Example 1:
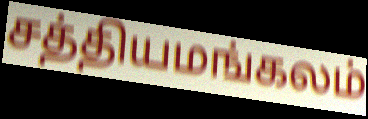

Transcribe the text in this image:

சத்தியமங்கலம்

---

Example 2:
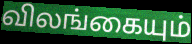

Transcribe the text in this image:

விலங்கையும்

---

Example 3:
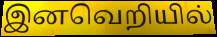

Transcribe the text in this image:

இனவெறியில்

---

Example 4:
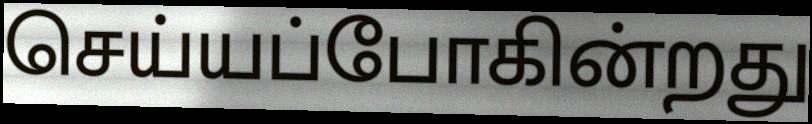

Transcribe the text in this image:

செய்யப்போகின்றது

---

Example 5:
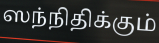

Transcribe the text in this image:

ஸந்நிதிக்கும்